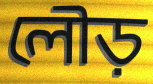
লৌড়